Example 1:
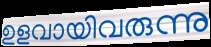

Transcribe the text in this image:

ഉളവായിവരുന്നു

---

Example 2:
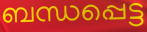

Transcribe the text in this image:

ബന്ധപ്പെട്ട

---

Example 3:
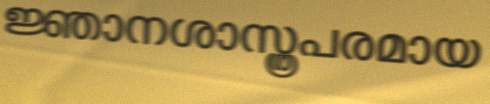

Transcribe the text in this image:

ജ്ഞാനശാസ്ത്രപരമായ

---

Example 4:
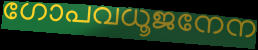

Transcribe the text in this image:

ഗോപവധൂജനേന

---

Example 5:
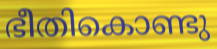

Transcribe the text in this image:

ഭീതികൊണ്ടു